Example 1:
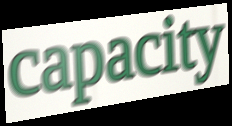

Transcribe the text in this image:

capacity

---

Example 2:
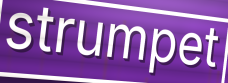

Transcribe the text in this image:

strumpet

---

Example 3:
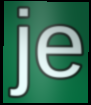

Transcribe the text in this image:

je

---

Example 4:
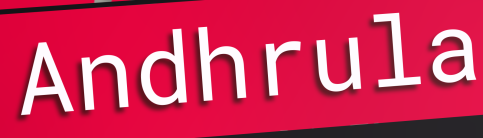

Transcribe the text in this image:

Andhrula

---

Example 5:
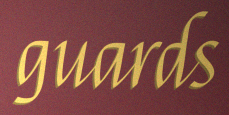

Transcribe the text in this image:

guards